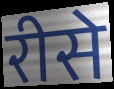
रीसे